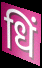
धिं